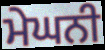
ਮੇਘਨੀ